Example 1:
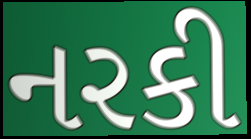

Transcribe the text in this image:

નરકી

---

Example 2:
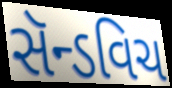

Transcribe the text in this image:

સૅન્ડવિચ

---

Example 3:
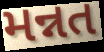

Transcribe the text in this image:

મન્નત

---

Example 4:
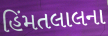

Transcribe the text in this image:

હિંમતલાલના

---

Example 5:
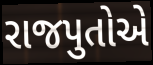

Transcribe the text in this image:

રાજપુતોએ